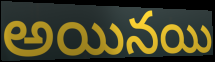
అయినయి